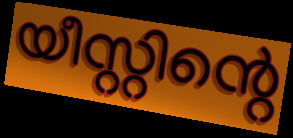
യീസ്റ്റിന്റെ